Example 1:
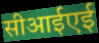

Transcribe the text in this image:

सीआईएई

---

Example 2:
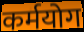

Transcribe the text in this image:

कर्मयोग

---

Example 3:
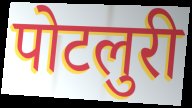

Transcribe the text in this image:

पोटलुरी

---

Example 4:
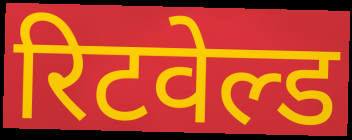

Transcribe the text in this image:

रिटवेल्ड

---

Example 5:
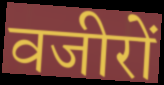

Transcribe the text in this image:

वजीरों